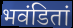
भवंडितां